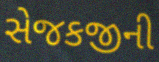
સેજકજીની